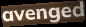
avenged